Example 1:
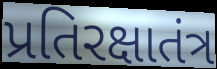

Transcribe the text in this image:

પ્રતિરક્ષાતંત્ર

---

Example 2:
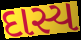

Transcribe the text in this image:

દાસ્ય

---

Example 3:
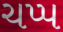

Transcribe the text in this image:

ચપ્પ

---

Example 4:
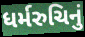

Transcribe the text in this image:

ધર્મરુચિનું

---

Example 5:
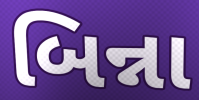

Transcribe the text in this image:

બિન્ના